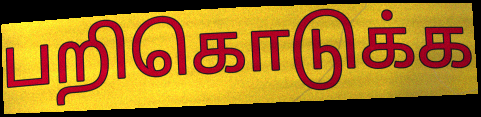
பறிகொடுக்க